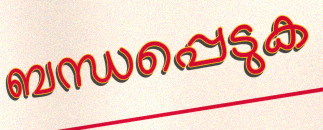
ബന്ധപ്പെടുക